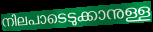
നിലപാടെടുക്കാനുള്ള